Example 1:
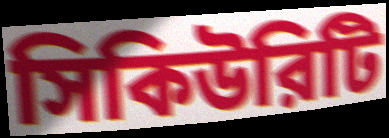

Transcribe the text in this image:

সিকিউরিটি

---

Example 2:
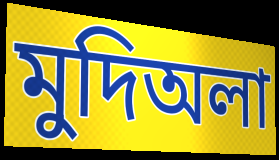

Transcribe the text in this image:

মুদিঅলা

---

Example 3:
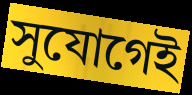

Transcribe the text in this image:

সুযোগেই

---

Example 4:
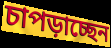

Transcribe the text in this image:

চাপড়াচ্ছেন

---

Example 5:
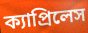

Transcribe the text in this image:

ক্যাপ্রিলেস